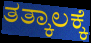
ತತ್ಕಾಲಕ್ಕೆ